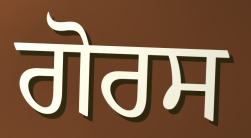
ਗੋਰਸ